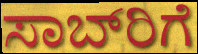
ಸಾಬ್‌ರಿಗೆ